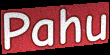
Pahu